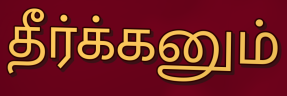
தீர்க்கனும்